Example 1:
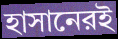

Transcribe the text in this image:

হাসানেরই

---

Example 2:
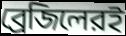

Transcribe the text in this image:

ব্রেজিলেরই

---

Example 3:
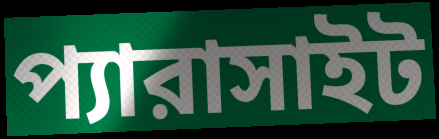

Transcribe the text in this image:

প্যারাসাইট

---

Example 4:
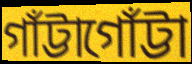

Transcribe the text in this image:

গাঁট্টাগোঁট্টা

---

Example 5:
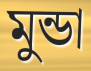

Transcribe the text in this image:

মুন্ডা